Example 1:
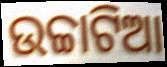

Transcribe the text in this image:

ଉଚ୍ଚାଟିଆ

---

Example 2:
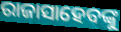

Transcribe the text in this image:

ରାଜାସାହେବଙ୍କୁ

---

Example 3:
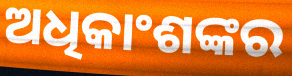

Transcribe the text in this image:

ଅଧିକାଂଶଙ୍କର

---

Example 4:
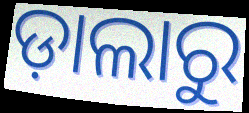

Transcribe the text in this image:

ଡ଼ାଲାରୁ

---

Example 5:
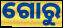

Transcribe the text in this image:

ଗୋରୁ